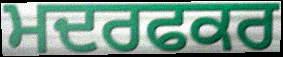
ਮਦਰਫਕਰ